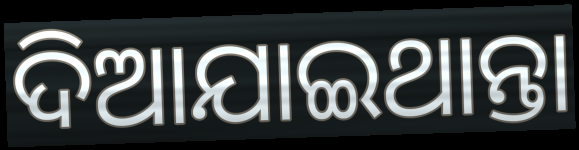
ଦିଆଯାଇଥାନ୍ତା